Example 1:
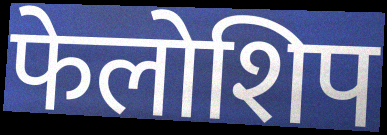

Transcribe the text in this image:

फेलोशिप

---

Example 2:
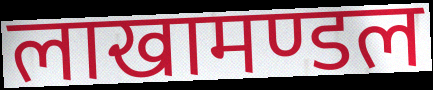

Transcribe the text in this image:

लाखामण्डल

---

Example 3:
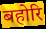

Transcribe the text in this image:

बहोरि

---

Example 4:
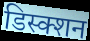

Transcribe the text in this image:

डिस्क्शन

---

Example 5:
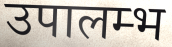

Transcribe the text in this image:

उपालम्भ